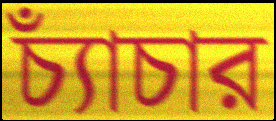
চ্যাঁচার